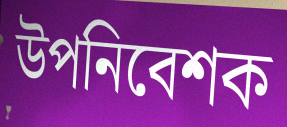
উপনিবেশক